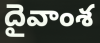
దైవాంశ